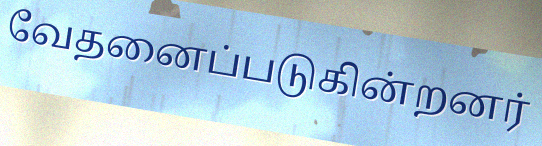
வேதனைப்படுகின்றனர்